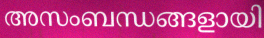
അസംബന്ധങ്ങളായി